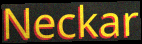
Neckar